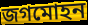
জগমোহন